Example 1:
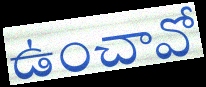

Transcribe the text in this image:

ఉంచావో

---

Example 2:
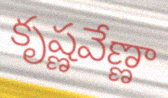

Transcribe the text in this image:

కృష్ణవేణ్ణా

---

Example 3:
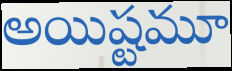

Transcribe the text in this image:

అయిష్టమూ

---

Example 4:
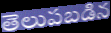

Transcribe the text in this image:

తెలుపబడిన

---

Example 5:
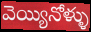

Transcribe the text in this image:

వెయ్యినోళ్ళు